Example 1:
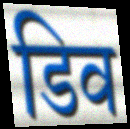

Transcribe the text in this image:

डिव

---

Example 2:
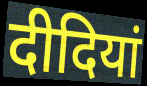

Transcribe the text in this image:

दीदियां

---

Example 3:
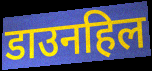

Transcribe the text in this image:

डाउनहिल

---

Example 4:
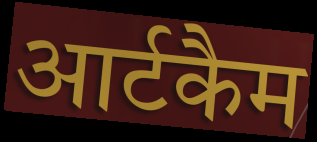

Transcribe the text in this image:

आर्टकैम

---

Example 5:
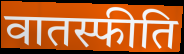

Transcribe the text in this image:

वातस्फीति